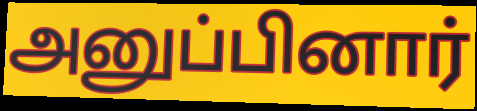
அனுப்பினார்